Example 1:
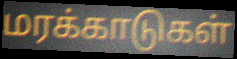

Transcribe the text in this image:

மரக்காடுகள்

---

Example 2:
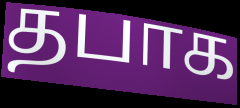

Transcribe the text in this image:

தபாக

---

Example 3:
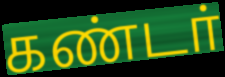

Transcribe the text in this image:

கண்டர்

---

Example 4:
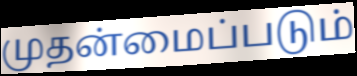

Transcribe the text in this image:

முதன்மைப்படும்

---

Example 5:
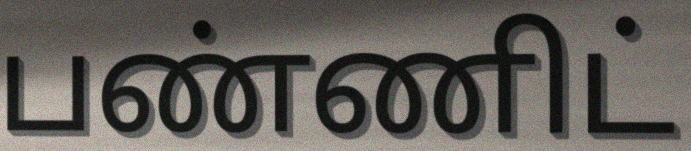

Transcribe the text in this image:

பண்ணிட்